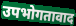
उपभोगतावाद